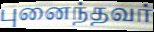
புனைந்தவர்